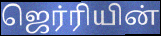
ஜெர்ரியின்